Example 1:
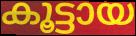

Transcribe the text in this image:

കൂട്ടായ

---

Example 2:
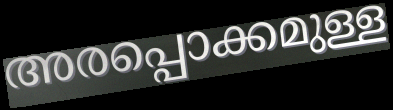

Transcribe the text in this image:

അരപ്പൊക്കമുള്ള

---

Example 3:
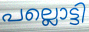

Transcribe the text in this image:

പല്ലൊട്ടി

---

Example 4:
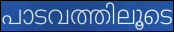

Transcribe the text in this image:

പാടവത്തിലൂടെ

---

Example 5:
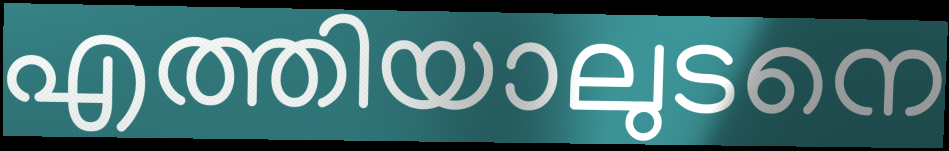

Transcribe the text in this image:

എത്തിയാലുടനെ